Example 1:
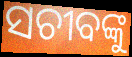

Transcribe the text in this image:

ସଚୀବଙ୍କୁ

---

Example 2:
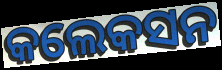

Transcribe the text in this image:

କଲେକସନ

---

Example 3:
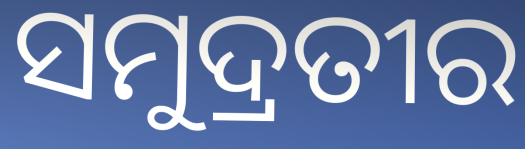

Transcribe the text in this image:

ସମୁଦ୍ରତୀର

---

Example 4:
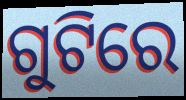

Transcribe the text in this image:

ଗୁଟିରେ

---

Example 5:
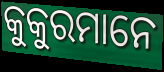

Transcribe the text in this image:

କୁକୁରମାନେ